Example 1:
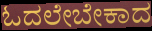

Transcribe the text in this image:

ಓದಲೇಬೇಕಾದ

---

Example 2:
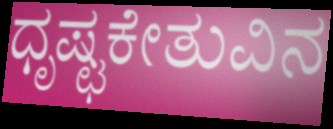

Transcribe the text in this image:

ಧೃಷ್ಟಕೇತುವಿನ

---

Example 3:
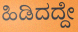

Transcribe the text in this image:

ಹಿಡಿದದ್ದೇ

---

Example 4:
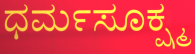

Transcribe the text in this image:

ಧರ್ಮಸೂಕ್ಷ್ಮ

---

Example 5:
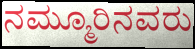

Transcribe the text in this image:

ನಮ್ಮೂರಿನವರು